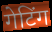
गेटिंग